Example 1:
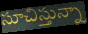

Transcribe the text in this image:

సూచిస్తున్నా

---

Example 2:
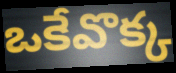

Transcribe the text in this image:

ఒకేవొక్క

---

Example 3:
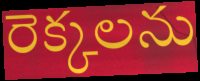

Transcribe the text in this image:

రెక్కలను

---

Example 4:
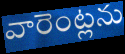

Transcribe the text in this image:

వారెంట్లను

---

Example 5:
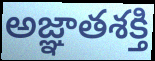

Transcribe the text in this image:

అజ్ఞాతశక్తి